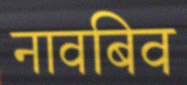
नावबिव